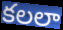
కలలా